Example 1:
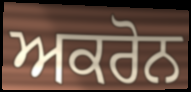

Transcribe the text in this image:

ਅਕਰੋਨ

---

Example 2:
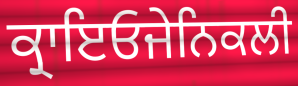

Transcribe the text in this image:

ਕ੍ਰਾਇਓਜੇਨਿਕਲੀ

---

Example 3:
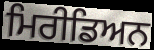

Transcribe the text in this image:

ਮਿਰੀਡਿਅਨ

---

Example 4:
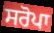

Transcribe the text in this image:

ਸਰੋਪਾ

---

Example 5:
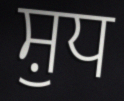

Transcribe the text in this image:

ਸ਼ੁਧ